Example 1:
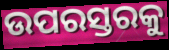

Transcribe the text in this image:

ଉପରସ୍ତରକୁ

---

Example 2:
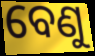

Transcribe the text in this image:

ବେଣୁ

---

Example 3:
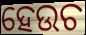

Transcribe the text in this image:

ହେଉଚ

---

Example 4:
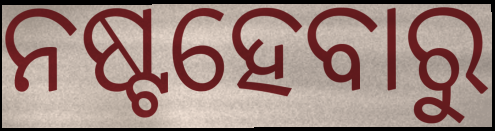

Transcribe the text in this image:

ନଷ୍ଟହେବାରୁ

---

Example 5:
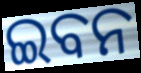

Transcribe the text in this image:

ଇବନ